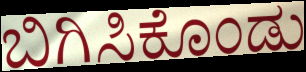
ಬಿಗಿಸಿಕೊಂಡು